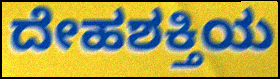
ದೇಹಶಕ್ತಿಯ